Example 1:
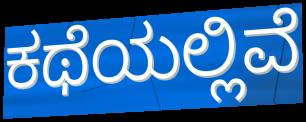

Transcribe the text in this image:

ಕಥೆಯಲ್ಲಿವೆ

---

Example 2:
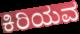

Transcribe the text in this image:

ಕಿರಿಯವ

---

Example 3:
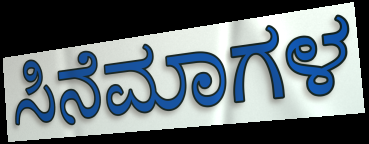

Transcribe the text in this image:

ಸಿನೆಮಾಗಳ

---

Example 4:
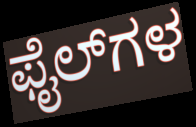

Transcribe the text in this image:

ಫೈಲ್‌ಗಳ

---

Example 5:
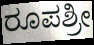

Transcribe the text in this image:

ರೂಪಶ್ರೀ